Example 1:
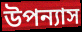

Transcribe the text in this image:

উপন্যাস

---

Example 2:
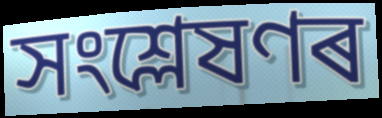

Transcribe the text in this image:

সংশ্লেষণৰ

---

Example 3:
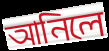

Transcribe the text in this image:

আনিলে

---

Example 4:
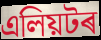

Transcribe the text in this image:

এলিয়টৰ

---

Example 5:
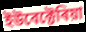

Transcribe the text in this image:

ইউবেক্টেৰিয়া